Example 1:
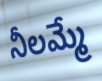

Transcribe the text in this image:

నీలమ్మే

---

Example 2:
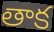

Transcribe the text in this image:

తాక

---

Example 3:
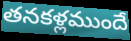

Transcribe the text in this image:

తనకళ్లముందే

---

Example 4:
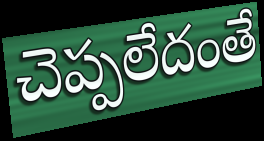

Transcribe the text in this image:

చెప్పలేదంతే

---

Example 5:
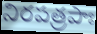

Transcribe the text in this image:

నిరపత్రపాః